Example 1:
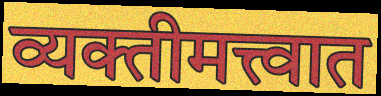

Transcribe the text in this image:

व्यक्तीमत्त्वात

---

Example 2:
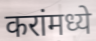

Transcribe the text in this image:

करांमध्ये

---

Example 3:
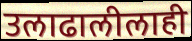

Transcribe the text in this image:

उलाढालीलाही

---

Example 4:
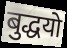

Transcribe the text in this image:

बुद्धयो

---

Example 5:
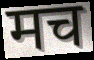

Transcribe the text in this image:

मच